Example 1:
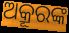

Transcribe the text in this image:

ଅକ୍ରୂରଙ୍କ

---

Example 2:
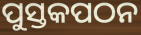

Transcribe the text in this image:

ପୁସ୍ତକପଠନ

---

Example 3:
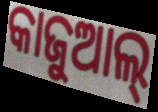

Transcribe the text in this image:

କାଜୁଆଲ୍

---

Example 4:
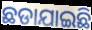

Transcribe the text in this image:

ଛଡାଯାଇଛି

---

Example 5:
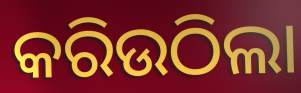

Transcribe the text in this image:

କରିଉଠିଲା